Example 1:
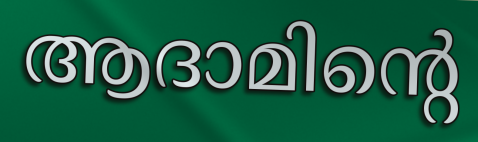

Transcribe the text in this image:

ആദാമിന്റെ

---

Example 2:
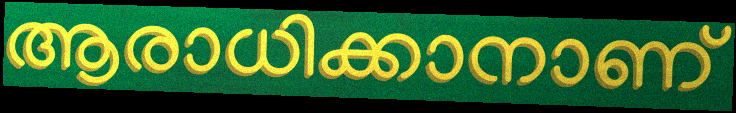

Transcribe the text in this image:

ആരാധിക്കാനാണ്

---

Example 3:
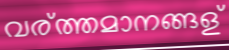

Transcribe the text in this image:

വര്ത്തമാനങ്ങള്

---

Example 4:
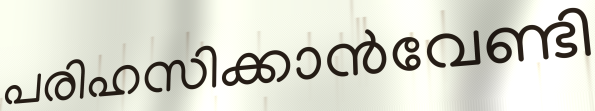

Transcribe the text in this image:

പരിഹസിക്കാൻവേണ്ടി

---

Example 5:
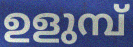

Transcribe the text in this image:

ഉളുമ്പ്